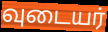
வுடையர்